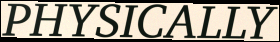
PHYSICALLY